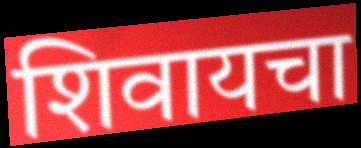
शिवायचा